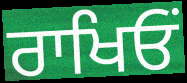
ਰਾਖਿਓਂ